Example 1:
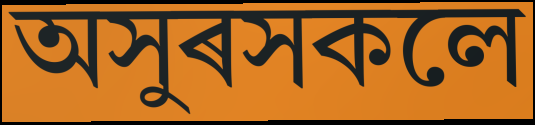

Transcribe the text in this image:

অসুৰসকলে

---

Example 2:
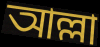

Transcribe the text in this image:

আল্লা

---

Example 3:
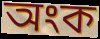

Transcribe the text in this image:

অংক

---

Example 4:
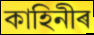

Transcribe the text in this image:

কাহিনীৰ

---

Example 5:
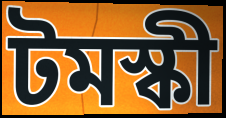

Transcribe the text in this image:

টমস্কী